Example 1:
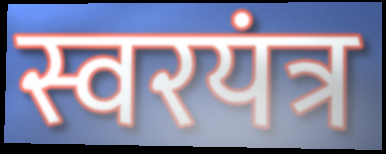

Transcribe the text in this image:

स्वरयंत्र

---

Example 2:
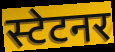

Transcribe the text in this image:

स्टेटनर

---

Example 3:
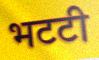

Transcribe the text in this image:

भटटी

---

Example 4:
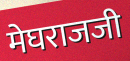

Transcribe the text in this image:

मेघराजजी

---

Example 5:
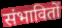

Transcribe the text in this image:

संभावितों